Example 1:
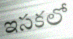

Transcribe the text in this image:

ఇసకలో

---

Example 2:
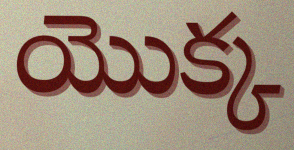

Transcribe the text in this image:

యొక్క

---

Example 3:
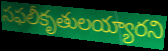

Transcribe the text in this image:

సఫలీకృతులయ్యారని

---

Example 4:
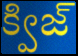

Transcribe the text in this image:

క్విజ్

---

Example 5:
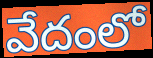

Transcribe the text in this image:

వేదంలో